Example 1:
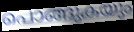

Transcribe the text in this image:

പൊങ്ങുകയും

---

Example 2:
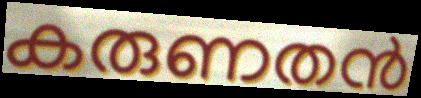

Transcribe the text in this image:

കരുണതൻ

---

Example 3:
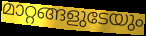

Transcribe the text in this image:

മാറ്റങ്ങളുടേയും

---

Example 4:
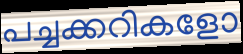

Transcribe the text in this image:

പച്ചക്കറികളോ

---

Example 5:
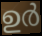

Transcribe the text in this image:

ഉർ